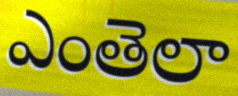
ఎంతెలా